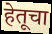
हेतूचा